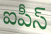
ఐపీస్